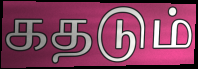
கதடும்